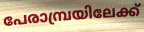
പേരാമ്പ്രയിലേക്ക്